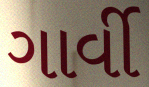
ગાર્વી